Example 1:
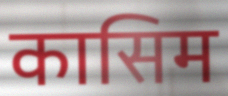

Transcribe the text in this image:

कासिम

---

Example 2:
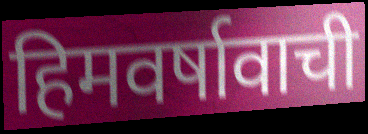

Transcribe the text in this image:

हिमवर्षावाची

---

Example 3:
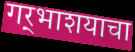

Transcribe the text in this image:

गर्भाशयाचा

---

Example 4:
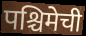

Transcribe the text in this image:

पश्चिमेची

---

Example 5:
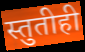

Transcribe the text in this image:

स्तुतीही